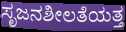
ಸೃಜನಶೀಲತೆಯತ್ತ